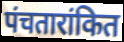
पंचतारांकित